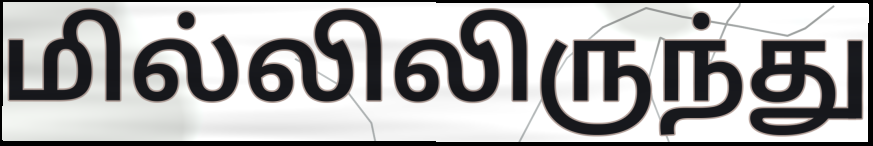
மில்லிலிருந்து